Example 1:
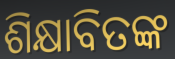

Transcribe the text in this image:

ଶିକ୍ଷାବିତଙ୍କ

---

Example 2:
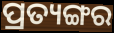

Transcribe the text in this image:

ପ୍ରତ୍ୟଙ୍ଗର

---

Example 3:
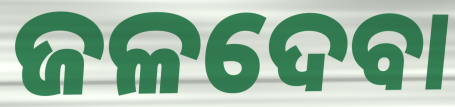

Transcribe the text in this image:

ଜଳଦେବା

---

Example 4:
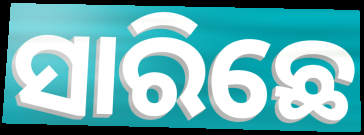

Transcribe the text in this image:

ସାରିଛେ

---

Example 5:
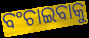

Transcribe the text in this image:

ବଂଚାଇବାକୁ